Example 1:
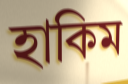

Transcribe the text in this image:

হাকিম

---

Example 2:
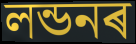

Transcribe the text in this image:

লন্ডনৰ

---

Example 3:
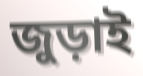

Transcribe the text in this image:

জুড়াই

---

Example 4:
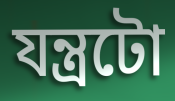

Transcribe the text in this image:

যন্ত্ৰটো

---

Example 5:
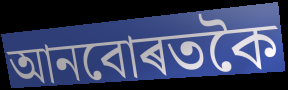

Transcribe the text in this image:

আনবোৰতকৈ